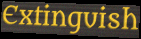
Extinguish